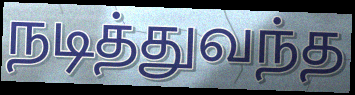
நடித்துவந்த